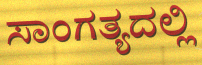
ಸಾಂಗತ್ಯದಲ್ಲಿ